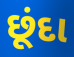
છૂંદા